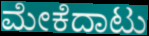
ಮೇಕೆದಾಟು